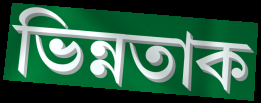
ভিন্নতাক